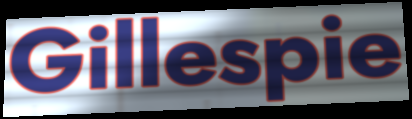
Gillespie